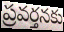
ప్రవర్తనకు